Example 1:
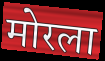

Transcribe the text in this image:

मोरला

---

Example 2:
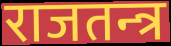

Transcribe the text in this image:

राजतन्त्र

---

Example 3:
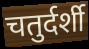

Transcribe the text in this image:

चतुर्दर्शी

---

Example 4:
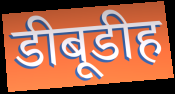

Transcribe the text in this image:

डीबूडीह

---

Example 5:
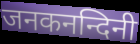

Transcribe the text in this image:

जनकनन्दिनी